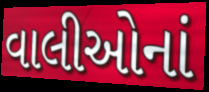
વાલીઓનાં